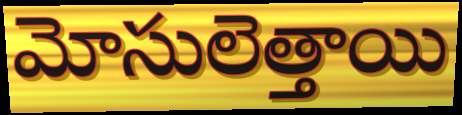
మోసులెత్తాయి